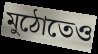
মুঠোতেও